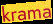
krama